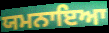
ਯਮਨਾਇਆ